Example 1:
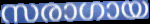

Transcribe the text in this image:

സരാഗായ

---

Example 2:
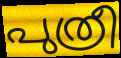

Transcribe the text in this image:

പുത്രീ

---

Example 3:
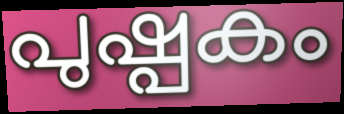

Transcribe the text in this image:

പുഷ്പകം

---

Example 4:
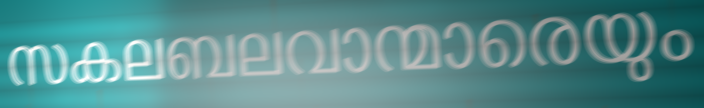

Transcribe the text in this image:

സകലബലവാന്മാരെയും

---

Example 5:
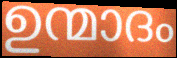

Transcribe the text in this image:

ഉന്മാദം